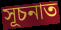
সূচনাত